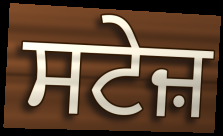
ਸਟੇਜ਼